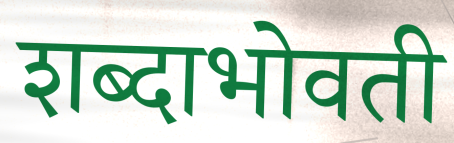
शब्दाभोवती